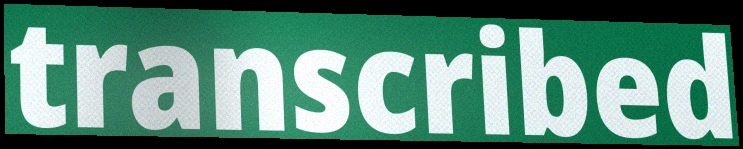
transcribed